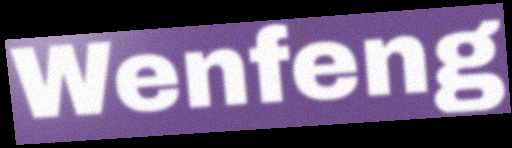
Wenfeng